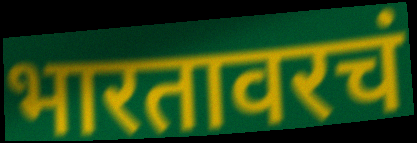
भारतावरचं